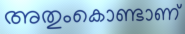
അതുംകൊണ്ടാണ്